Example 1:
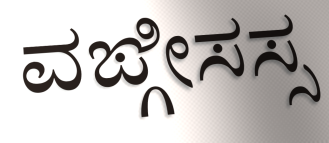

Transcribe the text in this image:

ವಙ್ಗೀಸಸ್ಸ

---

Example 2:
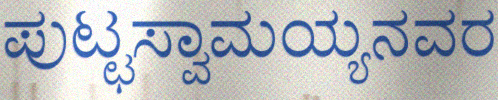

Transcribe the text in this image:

ಪುಟ್ಟಸ್ವಾಮಯ್ಯನವರ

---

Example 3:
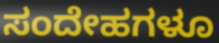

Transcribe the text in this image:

ಸಂದೇಹಗಳೂ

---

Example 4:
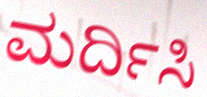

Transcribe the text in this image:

ಮರ್ದಿಸಿ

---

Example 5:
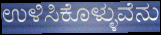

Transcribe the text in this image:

ಉಳಿಸಿಕೊಳ್ಳುವೆನು